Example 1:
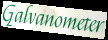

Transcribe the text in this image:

Galvanometer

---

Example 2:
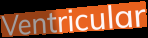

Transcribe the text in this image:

Ventricular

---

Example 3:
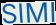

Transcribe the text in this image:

SIMI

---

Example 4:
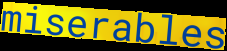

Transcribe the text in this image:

miserables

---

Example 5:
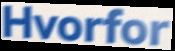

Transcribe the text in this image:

Hvorfor